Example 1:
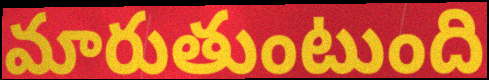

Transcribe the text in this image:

మారుతుంటుంది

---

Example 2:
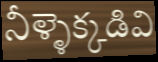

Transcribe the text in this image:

నీళ్ళెక్కడివి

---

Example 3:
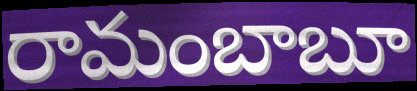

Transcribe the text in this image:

రామంబాబూ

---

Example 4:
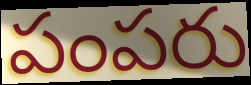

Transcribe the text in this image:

పంపరు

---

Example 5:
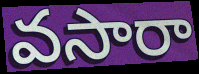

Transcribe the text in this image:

వసారా